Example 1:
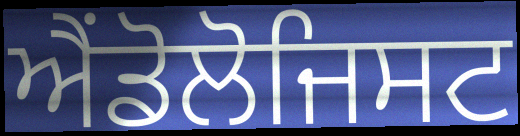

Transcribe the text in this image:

ਐਂਡੋਲੋਜਿਸਟ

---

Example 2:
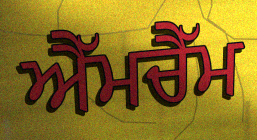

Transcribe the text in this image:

ਐੱਮਚੈੱਮ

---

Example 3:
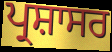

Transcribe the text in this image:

ਪ੍ਰਸ਼ਾਸਰ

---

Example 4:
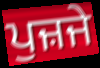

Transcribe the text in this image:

ਪੁਜ਼ਜੇ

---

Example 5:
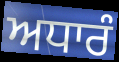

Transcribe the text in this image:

ਅਧਾਰੰ